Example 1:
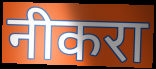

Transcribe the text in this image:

नीकरा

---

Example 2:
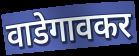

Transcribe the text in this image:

वाडेगावकर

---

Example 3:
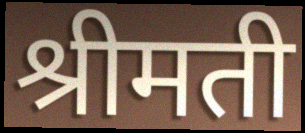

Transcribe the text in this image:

श्रीमती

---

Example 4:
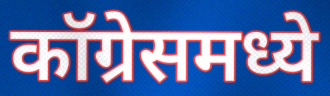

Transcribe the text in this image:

कॉग्रेसमध्ये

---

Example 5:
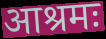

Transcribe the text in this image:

आश्रमः